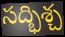
సద్భిశ్చ